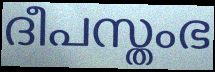
ദീപസ്തംഭ